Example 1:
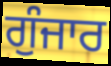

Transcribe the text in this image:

ਗੁੰਜਾਰ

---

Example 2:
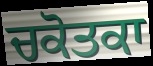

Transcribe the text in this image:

ਚਕੋਤਕਾ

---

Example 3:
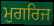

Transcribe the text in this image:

ਮੁਗਰਿਜ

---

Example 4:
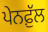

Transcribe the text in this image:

ਪੇਨਫ਼ੁੱਲ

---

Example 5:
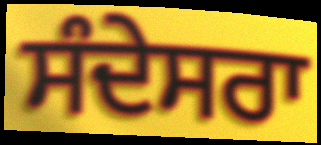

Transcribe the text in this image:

ਸੰਦੇਸਰਾ